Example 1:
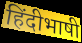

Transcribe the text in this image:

हिंदीभाषी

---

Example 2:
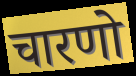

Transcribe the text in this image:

चारणो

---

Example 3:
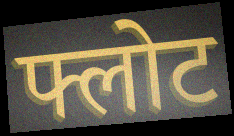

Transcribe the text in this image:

फ्लोट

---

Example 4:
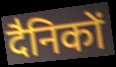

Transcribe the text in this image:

दैनिकों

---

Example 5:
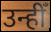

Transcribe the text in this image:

उन्हीँ